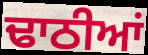
ਢਾਠੀਆਂ